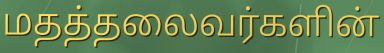
மதத்தலைவர்களின்